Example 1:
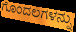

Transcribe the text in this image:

ಗೊಂದಲಗಳನ್ನು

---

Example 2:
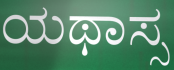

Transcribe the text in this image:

ಯಥಾಸ್ಸ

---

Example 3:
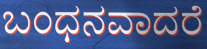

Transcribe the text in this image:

ಬಂಧನವಾದರೆ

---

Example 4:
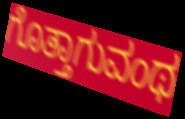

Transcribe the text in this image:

ಗೊತ್ತಾಗುವಂಥ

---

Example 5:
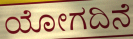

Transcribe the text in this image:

ಯೋಗದಿನೆ